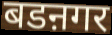
बडऩगर